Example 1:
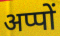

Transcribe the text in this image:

अप्पों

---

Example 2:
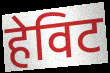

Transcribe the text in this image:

हेविट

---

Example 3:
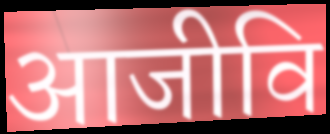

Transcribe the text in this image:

आजीवि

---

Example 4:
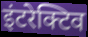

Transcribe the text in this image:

इंटरेक्टिव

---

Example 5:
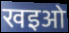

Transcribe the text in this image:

खइओ